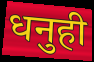
धनुही